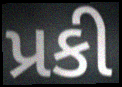
પ્રકી